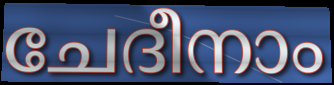
ചേദീനാം